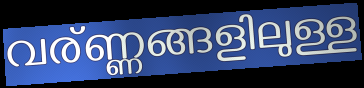
വര്ണ്ണങ്ങളിലുള്ള